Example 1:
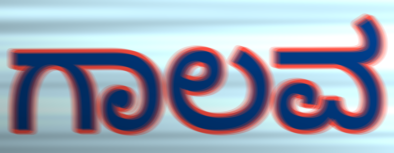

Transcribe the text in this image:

ಗಾಲವ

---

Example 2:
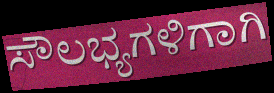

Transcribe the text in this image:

ಸೌಲಭ್ಯಗಳಿಗಾಗಿ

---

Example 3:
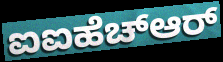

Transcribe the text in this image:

ಐಐಹೆಚ್ಆರ್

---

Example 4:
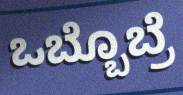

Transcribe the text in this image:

ಒಬ್ಬೊಬ್ರೆ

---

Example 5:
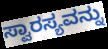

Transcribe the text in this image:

ಸ್ವಾರಸ್ಯವನ್ನು